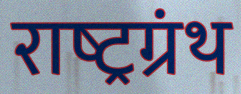
राष्ट्रग्रंथ